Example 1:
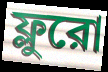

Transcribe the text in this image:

ফ্লুরো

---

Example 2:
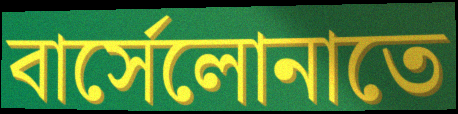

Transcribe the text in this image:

বার্সেলোনাতে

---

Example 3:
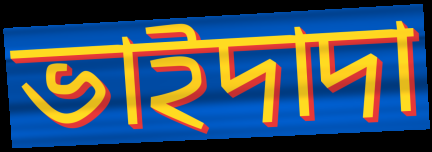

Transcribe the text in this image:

ভাইদাদা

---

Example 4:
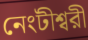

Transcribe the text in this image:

নেংটীশ্বরী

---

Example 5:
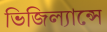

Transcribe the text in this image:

ভিজিল্যান্সে